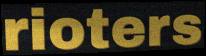
rioters